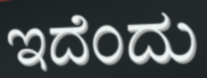
ಇದೆಂದು